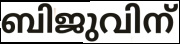
ബിജുവിന്